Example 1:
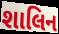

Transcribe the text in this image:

શાલિન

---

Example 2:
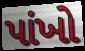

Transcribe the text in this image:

પાંખો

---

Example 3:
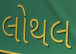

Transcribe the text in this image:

લોથલ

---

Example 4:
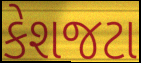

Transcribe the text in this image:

કેશજટા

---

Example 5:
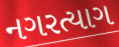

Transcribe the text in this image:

નગરત્યાગ